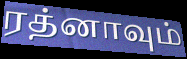
ரத்னாவும்